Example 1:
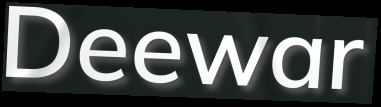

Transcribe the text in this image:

Deewar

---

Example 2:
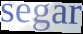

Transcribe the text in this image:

segar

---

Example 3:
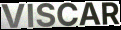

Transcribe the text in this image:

VISCAR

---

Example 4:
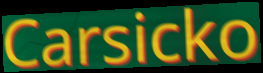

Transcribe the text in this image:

Carsicko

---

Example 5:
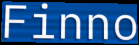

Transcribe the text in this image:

Finno